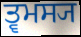
ਤ੍ਵਮਸ੍ਯ